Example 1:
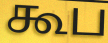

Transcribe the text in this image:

கூப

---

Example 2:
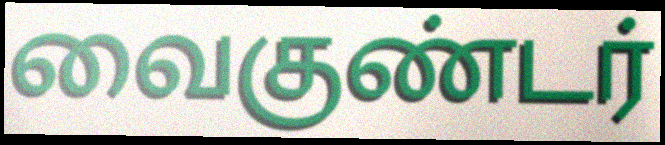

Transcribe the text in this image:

வைகுண்டர்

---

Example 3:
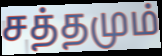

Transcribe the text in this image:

சத்தமும்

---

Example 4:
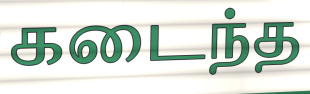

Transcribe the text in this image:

கடைந்த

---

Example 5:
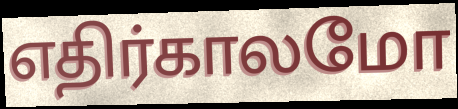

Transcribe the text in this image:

எதிர்காலமோ